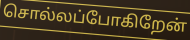
சொல்லப்போகிறேன்